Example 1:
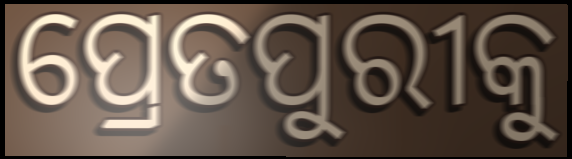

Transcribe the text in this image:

ପ୍ରେତପୁରୀକୁ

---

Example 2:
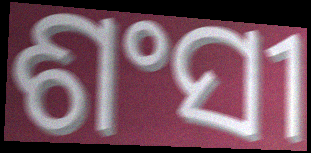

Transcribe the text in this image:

ଶଂସୀ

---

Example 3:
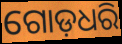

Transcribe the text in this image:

ଗୋଡ଼ଧରି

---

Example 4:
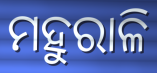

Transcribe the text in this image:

ମହୁରାଳି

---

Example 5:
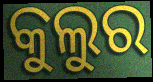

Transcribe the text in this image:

କୁଲୁର